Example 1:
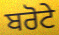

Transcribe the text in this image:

ਬਰੋਟੇ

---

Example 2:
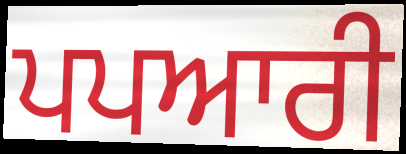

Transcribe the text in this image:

ਪਪਆਰੀ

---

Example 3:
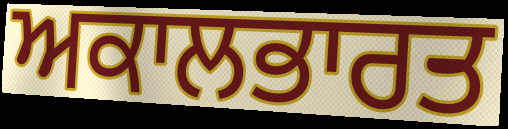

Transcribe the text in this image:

ਅਕਾਲਭਾਰਤ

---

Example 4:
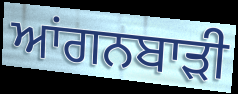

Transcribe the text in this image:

ਆਂਗਨਬਾੜੀ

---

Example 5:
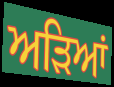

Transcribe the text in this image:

ਅੜਿਆਂ